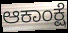
ಆಕಾಂಕ್ಷೆ